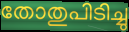
തോതുപിടിച്ചു